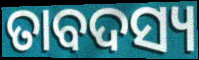
ତାବଦସ୍ୟ